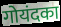
गोयंदका